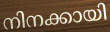
നിനക്കായി